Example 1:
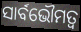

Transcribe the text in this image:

ସାର୍ବଭୌମତ୍ବ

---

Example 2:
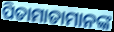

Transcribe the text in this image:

ପିତାମାତାମାନଙ୍କ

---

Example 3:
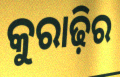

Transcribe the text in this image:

କୁରାଢ଼ିର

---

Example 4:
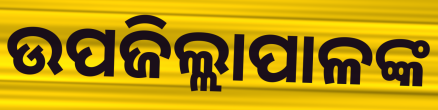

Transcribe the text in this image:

ଉପଜିଲ୍ଲାପାଳଙ୍କ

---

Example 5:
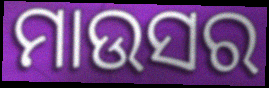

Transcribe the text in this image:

ମାଉସର